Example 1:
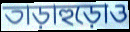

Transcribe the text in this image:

তাড়াহুড়োও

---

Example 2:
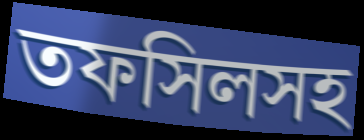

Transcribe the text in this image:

তফসিলসহ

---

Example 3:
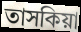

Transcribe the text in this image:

তাসকিয়া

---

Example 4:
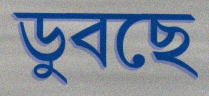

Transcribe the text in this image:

ডুবছে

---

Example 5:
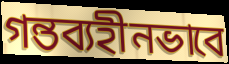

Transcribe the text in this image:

গন্তব্যহীনভাবে